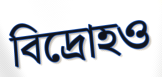
বিদ্রোহও